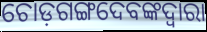
ଚୋଡ଼ଗଙ୍ଗଦେବଙ୍କଦ୍ୱାରା